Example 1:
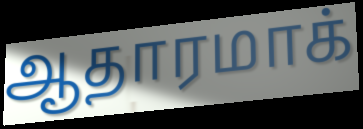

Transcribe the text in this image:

ஆதாரமாக்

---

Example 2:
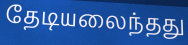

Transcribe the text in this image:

தேடியலைந்தது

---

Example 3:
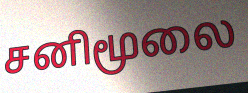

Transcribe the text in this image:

சனிமூலை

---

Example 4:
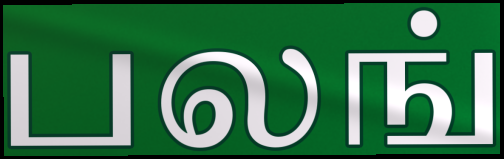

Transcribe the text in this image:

பலங்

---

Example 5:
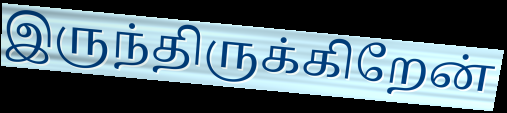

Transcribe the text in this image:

இருந்திருக்கிறேன்